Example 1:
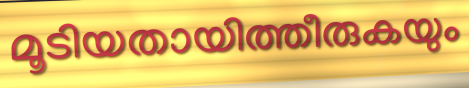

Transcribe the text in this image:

മൂടിയതായിത്തീരുകയും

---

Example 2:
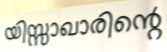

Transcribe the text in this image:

യിസ്സാഖാരിന്റെ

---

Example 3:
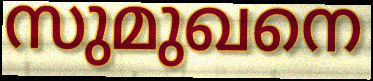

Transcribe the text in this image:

സുമുഖനെ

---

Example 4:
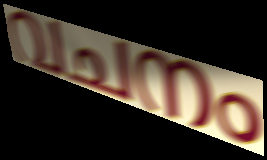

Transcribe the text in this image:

വചനം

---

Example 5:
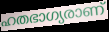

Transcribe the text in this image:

ഹതഭാഗ്യരാണ്